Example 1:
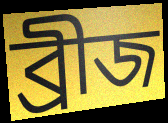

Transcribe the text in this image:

ব্রীজ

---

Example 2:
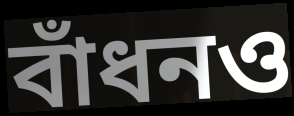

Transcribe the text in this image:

বাঁধনও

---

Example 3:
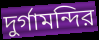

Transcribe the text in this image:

দুর্গামন্দির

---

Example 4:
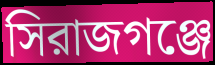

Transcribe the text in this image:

সিরাজগঞ্জে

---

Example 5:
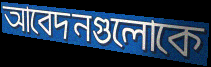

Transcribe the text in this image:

আবেদনগুলোকে